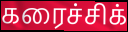
கரைச்சிக்